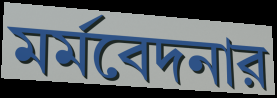
মর্মবেদনার